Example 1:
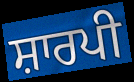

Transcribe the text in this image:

ਸ਼ਾਰਪੀ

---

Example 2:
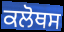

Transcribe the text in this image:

ਕਲੋਥਸ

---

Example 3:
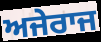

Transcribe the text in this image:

ਅਜੇਰਾਜ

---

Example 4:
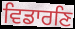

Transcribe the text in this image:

ਵਿਡਾਰਣਿ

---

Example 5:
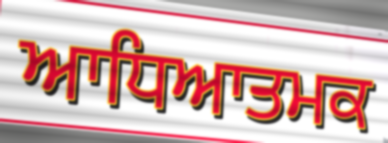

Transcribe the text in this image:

ਆਧਿਆਤਮਕ